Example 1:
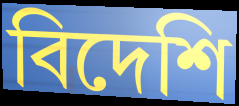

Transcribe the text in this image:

বিদেশি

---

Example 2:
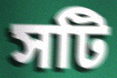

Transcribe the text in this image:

সটি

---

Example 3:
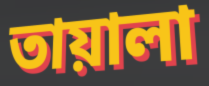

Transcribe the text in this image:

তায়ালা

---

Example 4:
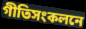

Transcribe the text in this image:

গীতিসংকলনে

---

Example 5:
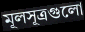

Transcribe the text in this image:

মূলসূত্রগুলো